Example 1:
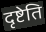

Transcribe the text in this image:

दृष्टेति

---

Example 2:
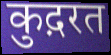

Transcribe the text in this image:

कुद़रत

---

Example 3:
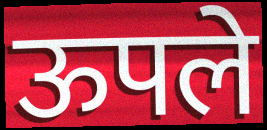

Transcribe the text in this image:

ऊपले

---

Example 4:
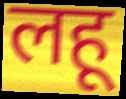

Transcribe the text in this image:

लहू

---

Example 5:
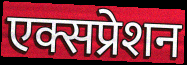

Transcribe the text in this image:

एक्सप्रेशन